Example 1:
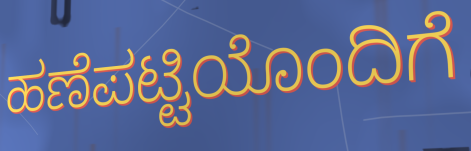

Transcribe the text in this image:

ಹಣೆಪಟ್ಟಿಯೊಂದಿಗೆ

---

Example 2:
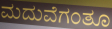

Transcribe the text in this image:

ಮದುವೆಗಂತೂ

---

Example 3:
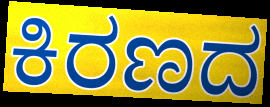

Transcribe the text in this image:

ಕಿರಣದ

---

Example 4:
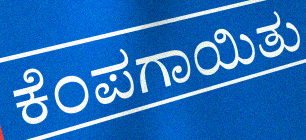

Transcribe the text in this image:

ಕೆಂಪಗಾಯಿತು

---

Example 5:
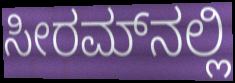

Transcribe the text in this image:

ಸೀರಮ್‌ನಲ್ಲಿ